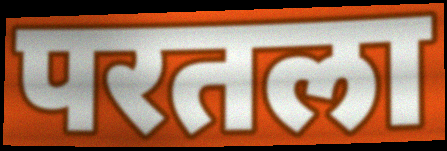
परतला